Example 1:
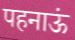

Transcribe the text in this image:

पहनाऊं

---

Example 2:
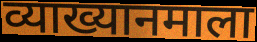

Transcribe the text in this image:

व्याख्यानमाला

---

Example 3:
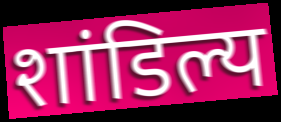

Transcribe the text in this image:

शांडिल्य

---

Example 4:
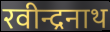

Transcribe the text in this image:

रवीन्द्रनाथ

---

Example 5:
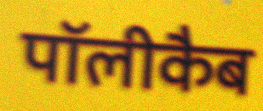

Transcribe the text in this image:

पॉलीकैब